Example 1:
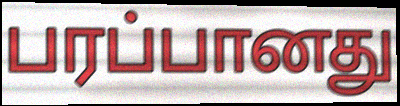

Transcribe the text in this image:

பரப்பானது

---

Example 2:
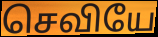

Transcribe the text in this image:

செவியே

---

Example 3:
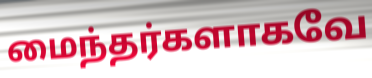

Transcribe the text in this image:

மைந்தர்களாகவே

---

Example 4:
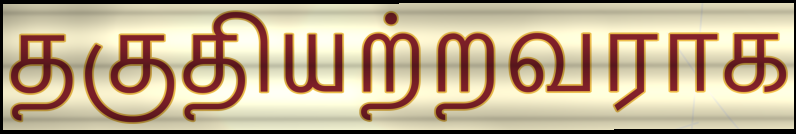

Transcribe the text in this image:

தகுதியற்றவராக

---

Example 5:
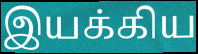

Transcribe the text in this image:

இயக்கிய